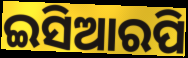
ଇସିଆରପି